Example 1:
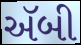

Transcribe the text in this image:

ઍબી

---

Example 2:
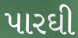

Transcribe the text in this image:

પારઘી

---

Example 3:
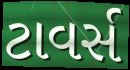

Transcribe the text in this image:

ટાવર્સ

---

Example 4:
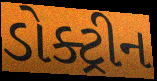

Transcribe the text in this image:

ડોક્ટ્રીન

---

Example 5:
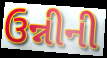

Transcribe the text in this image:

ઉન્નીની